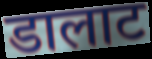
डालाट